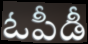
ఓపీడీ